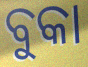
ବୁକା